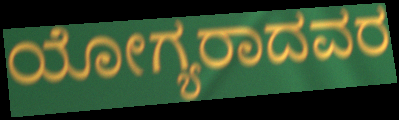
ಯೋಗ್ಯರಾದವರ